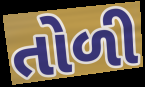
તોળી